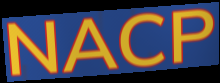
NACP